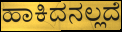
ಹಾಕಿದನಲ್ಲದೆ